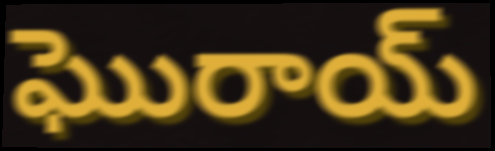
ఘొరాయ్